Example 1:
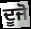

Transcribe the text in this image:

ਦੂਜੋ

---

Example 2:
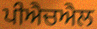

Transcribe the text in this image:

ਪੀਐਚਐਲ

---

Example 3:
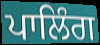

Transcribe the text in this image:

ਪਾਲਿੰਗ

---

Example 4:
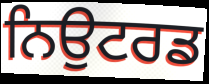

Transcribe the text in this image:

ਨਿਉਟਰਡ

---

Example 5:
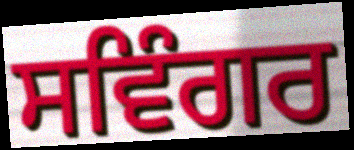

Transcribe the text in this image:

ਸਵਿੰਗਰ